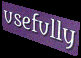
usefully